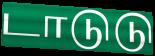
டாடுடு